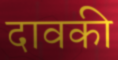
दावकी